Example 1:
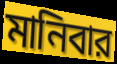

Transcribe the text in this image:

মানিবার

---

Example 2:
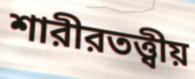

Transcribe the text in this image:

শারীরতত্ত্বীয়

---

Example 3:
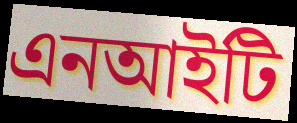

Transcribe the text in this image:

এনআইটি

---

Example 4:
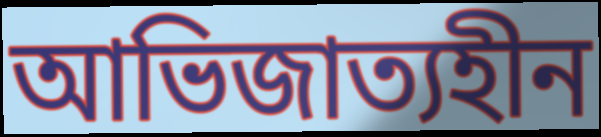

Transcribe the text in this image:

আভিজাত্যহীন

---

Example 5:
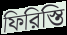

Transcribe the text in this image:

ফিরিস্তি